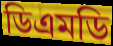
ডিএমডি